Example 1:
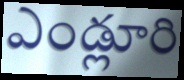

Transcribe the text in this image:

ఎండ్లూరి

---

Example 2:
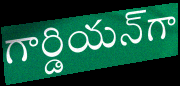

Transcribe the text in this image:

గార్డియన్‌గా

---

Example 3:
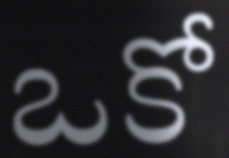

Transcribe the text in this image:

ఒకో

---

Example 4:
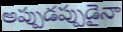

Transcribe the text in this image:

అప్పుడప్పుడైనా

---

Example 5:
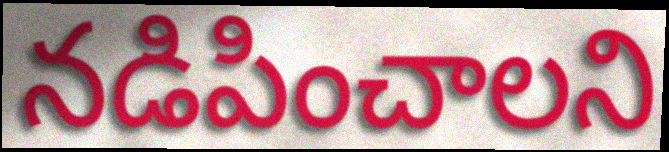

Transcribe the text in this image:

నడిపించాలని